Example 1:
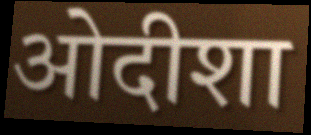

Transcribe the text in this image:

ओदीशा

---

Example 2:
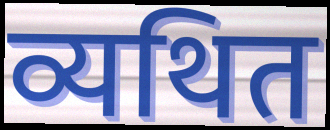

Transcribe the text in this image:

व्यथित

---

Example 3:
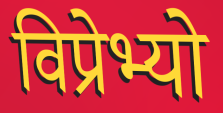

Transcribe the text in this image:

विप्रेभ्यो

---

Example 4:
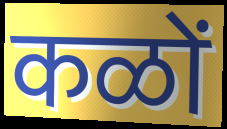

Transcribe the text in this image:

कळों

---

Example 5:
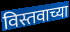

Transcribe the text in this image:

विस्तवाच्या